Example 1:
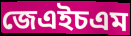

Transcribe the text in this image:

জেএইচএম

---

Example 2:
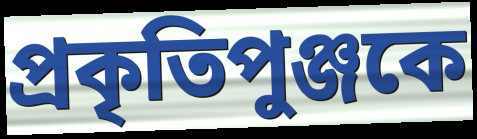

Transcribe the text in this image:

প্রকৃতিপুঞ্জকে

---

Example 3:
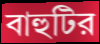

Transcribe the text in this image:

বাহুটির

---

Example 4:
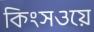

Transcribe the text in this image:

কিংসওয়ে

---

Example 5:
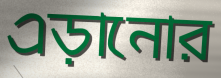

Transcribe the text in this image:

এড়ানোর